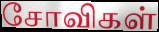
சோவிகள்